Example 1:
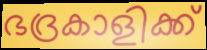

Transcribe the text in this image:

ഭദ്രകാളിക്ക്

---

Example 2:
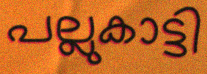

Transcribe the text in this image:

പല്ലുകാട്ടി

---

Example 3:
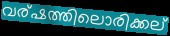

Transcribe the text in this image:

വര്ഷത്തിലൊരിക്കല്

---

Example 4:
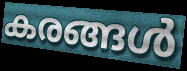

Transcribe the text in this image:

കരങ്ങൾ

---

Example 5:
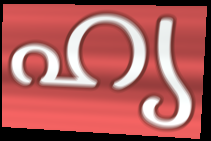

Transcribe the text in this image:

ഹ്യ